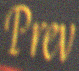
Prev